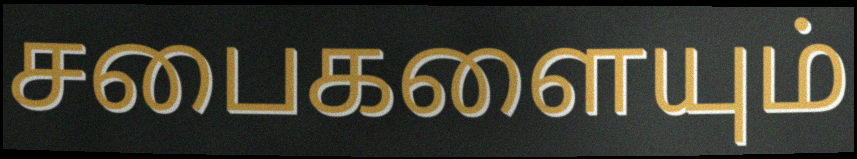
சபைகளையும்